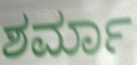
ಶರ್ಮಾ